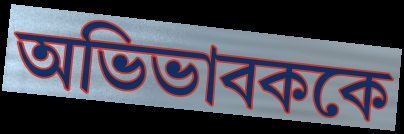
অভিভাবককে